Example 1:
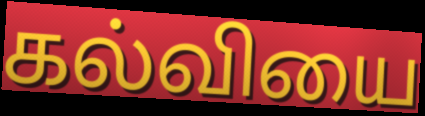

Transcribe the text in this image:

கல்வியை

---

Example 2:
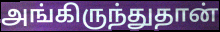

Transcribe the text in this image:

அங்கிருந்துதான்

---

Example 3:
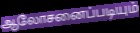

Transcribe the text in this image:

ஆலோசனைப்படியும்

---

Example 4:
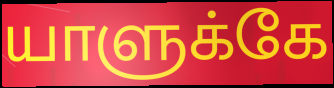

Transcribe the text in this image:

யாளுக்கே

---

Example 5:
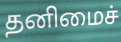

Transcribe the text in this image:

தனிமைச்